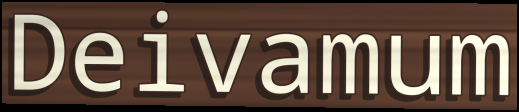
Deivamum